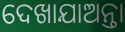
ଦେଖାଯାଅନ୍ତା